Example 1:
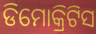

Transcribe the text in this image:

ଡିମୋକ୍ରିଟିସ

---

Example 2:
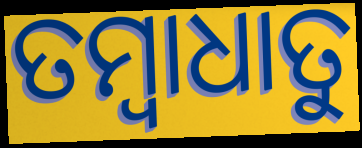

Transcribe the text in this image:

ତମ୍ବାଧାତୁ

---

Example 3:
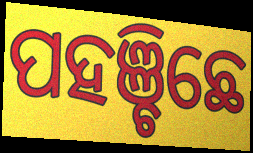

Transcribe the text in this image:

ପହଞ୍ଚିଛେ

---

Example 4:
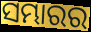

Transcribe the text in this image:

ସମ୍ଭାରର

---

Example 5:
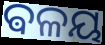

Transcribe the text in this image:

ଵଳୟ